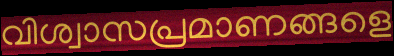
വിശ്വാസപ്രമാണങ്ങളെ